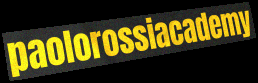
paolorossiacademy